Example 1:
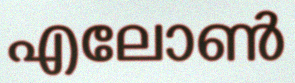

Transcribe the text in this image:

എലോൺ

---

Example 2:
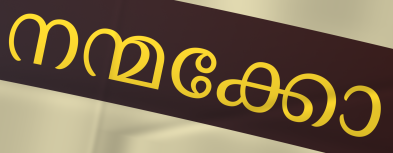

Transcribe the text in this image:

നന്മക്കോ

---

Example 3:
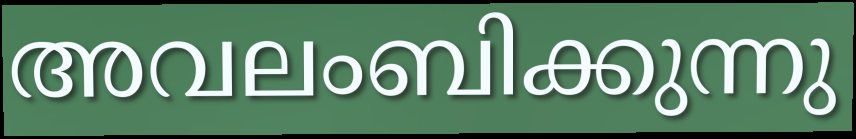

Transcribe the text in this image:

അവലംബിക്കുന്നു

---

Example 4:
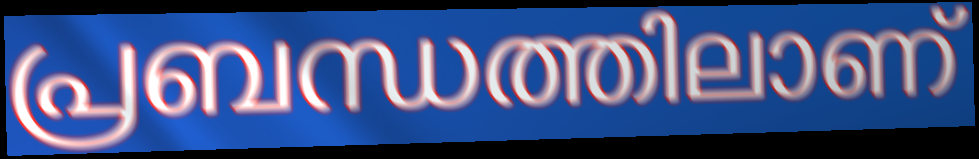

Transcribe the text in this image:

പ്രബന്ധത്തിലാണ്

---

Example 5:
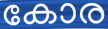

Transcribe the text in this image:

കോര